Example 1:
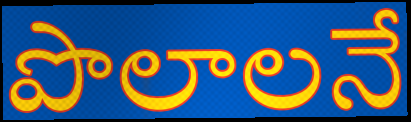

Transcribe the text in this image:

పొలాలనే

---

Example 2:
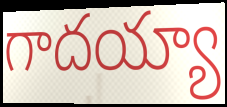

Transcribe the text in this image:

గాదయ్యా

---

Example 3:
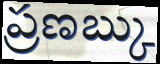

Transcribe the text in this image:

ప్రణబ్కు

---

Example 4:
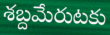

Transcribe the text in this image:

శబ్దమేరుటకు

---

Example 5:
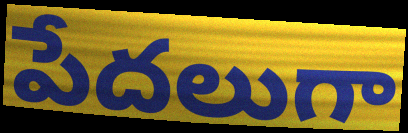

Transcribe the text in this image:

పేదలుగా